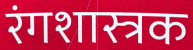
रंगशास्त्रक